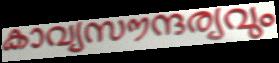
കാവ്യസൗന്ദര്യവും